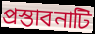
প্রস্তাবনাটি